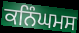
ਕਨਿੰਘਮਸ